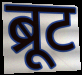
ब्रूट